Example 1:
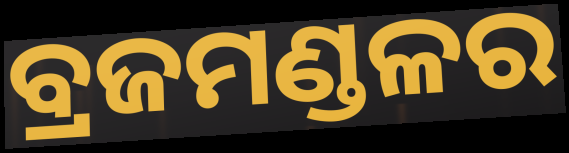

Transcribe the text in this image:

ବ୍ରଜମଣ୍ଡଳର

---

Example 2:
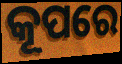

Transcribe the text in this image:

କୂପରେ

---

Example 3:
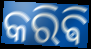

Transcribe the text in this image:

କରିଵି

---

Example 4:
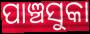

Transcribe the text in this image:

ପାଞ୍ଚସୁକା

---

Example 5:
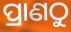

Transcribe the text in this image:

ପ୍ରାଣଠୁ